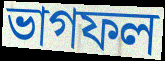
ভাগফল